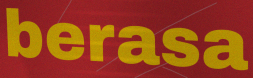
berasa